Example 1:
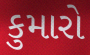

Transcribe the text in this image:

કુમારો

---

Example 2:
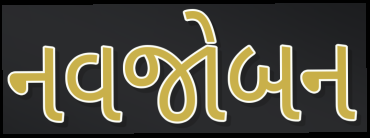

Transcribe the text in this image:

નવજોબન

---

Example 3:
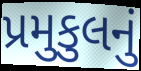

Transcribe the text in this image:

પ્રમુકુલનું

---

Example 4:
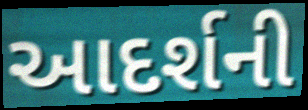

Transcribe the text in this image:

આદર્શની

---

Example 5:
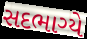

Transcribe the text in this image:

સદભાગ્યે